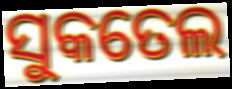
ସୁକତେଲ